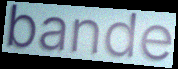
bande